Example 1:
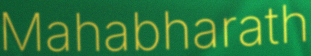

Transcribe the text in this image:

Mahabharath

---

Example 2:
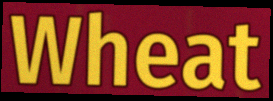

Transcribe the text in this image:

Wheat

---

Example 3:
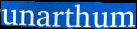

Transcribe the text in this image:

unarthum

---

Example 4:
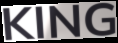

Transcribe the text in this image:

KING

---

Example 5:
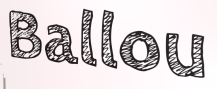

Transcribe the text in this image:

Ballou